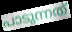
പാടുന്നത്